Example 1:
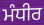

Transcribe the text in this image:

ਮੰਧੀਰ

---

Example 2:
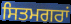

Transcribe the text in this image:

ਸਿਤਮਗਰਾਂ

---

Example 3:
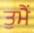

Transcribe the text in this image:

ਤੁਮੈਂ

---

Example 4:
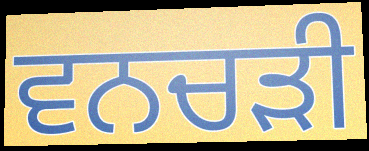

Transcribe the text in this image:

ਵਨਚੜੀ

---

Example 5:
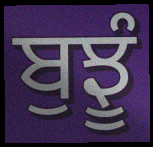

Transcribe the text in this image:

ਬੁਝੂੰ